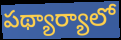
పథ్యార్యాలో